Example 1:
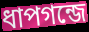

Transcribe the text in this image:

ধাপগন্জে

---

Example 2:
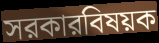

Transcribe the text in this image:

সরকারবিষয়ক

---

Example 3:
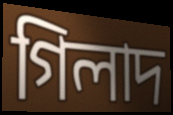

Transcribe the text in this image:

গিলাদ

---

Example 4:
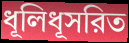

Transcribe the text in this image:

ধূলিধূসরিত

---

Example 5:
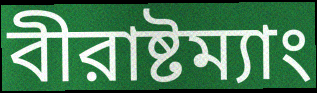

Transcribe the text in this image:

বীরাষ্টম্যাং